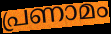
പ്രണാമം